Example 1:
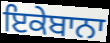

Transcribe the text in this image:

ਇਕੇਬਾਨਾ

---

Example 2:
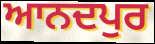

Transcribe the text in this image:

ਆਨਦਪੁਰ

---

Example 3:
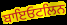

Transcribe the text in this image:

ਬਾਇਓਟਲਿਨ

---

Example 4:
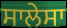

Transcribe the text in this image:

ਸਾਲੇਸਾ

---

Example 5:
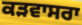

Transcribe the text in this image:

ਕੜਵਾਸਰਾ